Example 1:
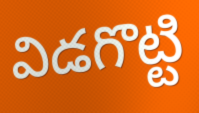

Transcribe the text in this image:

విడగొట్టి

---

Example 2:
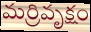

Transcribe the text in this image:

మర్రివృక్షం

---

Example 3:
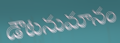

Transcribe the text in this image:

డౌటనుమానం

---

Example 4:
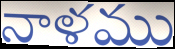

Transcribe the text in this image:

నాళము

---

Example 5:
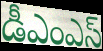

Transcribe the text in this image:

డీఎంఎస్